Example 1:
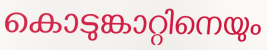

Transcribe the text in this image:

കൊടുങ്കാറ്റിനെയും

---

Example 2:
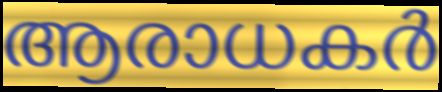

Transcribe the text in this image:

ആരാധകർ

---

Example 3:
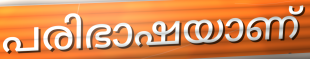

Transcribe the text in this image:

പരിഭാഷയാണ്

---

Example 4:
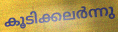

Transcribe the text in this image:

കൂടിക്കലർന്നു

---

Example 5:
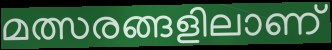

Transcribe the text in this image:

മത്സരങ്ങളിലാണ്